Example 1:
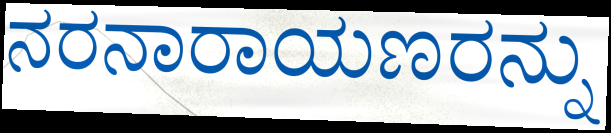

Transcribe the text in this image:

ನರನಾರಾಯಣರನ್ನು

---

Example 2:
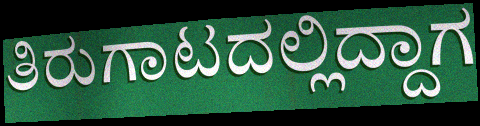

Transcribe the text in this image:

ತಿರುಗಾಟದಲ್ಲಿದ್ದಾಗ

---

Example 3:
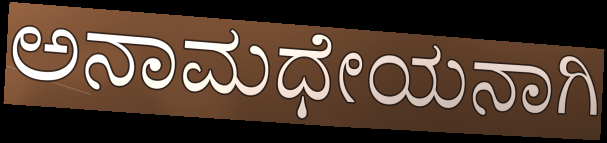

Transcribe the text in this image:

ಅನಾಮಧೇಯನಾಗಿ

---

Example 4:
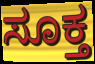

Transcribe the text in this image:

ಸೂಕ್ತ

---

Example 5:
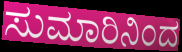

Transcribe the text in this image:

ಸುಮಾರಿನಿಂದ